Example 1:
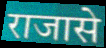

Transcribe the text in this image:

राजासे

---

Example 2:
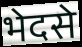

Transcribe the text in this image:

भेदसे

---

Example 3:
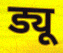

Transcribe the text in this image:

ड्यू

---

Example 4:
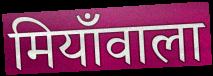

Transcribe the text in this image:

मियाँवाला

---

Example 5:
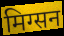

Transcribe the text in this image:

मिग्सन